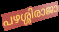
പഴശ്ശിരാജാ